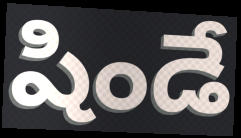
షిండే